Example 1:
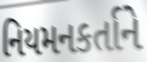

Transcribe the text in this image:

નિયમનકર્તાને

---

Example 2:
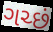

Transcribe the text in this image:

ગચ્છં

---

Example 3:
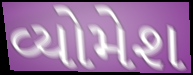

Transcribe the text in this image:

વ્યોમેશ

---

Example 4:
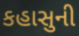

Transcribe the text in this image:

કહાસુની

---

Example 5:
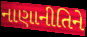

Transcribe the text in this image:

નાણાનીતિને